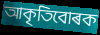
আকৃতিবোৰক